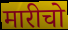
मारीचो